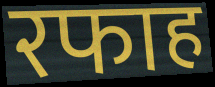
रफाह